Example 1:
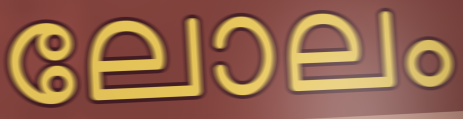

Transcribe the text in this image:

ലോലം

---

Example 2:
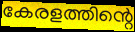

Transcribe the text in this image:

കേരളത്തിന്റെ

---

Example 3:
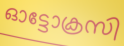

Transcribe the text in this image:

ഓട്ടോക്രസി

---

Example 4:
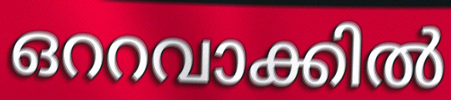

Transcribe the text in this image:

ഒററവാക്കിൽ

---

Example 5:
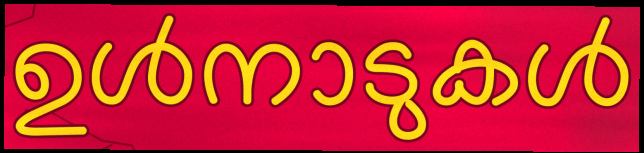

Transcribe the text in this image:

ഉൾനാടുകൾ